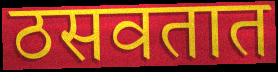
ठसवतात